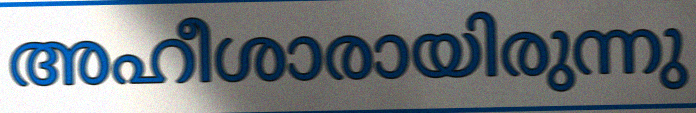
അഹീശാരായിരുന്നു